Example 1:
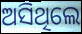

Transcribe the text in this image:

ଅସିଥିଲେ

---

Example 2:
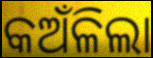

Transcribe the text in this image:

କଅଁଳିଲା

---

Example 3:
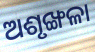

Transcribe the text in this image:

ଅଶୃଙ୍ଖଳା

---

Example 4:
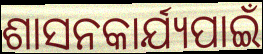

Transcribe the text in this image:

ଶାସନକାର୍ଯ୍ୟପାଇଁ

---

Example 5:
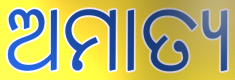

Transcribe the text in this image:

ଅମାତ୍ୟ